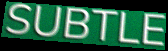
SUBTLE